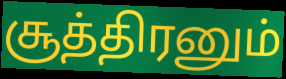
சூத்திரனும்